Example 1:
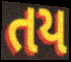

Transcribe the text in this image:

તય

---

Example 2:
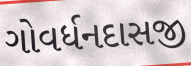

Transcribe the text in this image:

ગોવર્ધનદાસજી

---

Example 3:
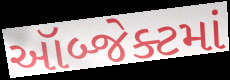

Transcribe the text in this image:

ઑબ્જેક્ટમાં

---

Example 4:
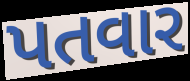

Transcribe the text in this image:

પતવાર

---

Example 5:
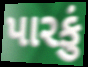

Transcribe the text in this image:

પારકું